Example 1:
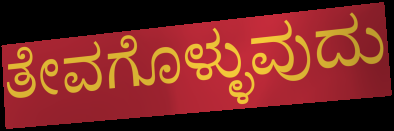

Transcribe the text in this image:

ತೇವಗೊಳ್ಳುವುದು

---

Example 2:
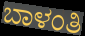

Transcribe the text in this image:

ಬಾಳಂತಿ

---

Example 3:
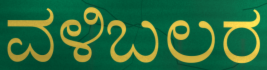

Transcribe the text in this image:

ವಳಿಬಲರ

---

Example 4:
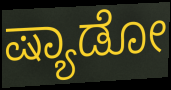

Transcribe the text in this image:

ಷ್ಯಾಡೋ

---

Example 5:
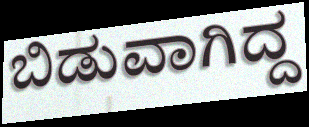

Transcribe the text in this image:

ಬಿಡುವಾಗಿದ್ದ